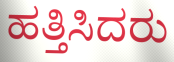
ಹತ್ತಿಸಿದರು